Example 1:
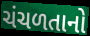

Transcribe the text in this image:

ચંચળતાનો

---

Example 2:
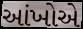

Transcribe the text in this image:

આંખોએ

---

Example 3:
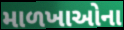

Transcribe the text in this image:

માળખાઓના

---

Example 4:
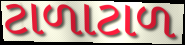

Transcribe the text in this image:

ટાળાટાળ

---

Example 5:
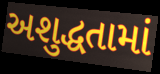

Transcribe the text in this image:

અશુદ્ધતામાં